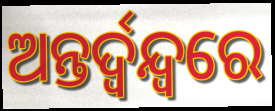
ଅନ୍ତର୍ଦ୍ୱନ୍ଦ୍ୱରେ